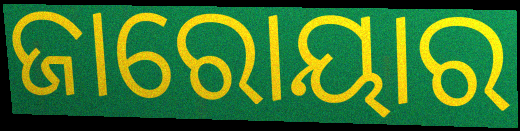
ଜାରୋୟାର